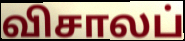
விசாலப்